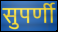
सुपर्णी